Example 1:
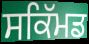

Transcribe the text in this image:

ਸਕਿੱਮਡ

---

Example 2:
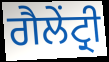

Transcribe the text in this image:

ਗੈਲੇਂਟ੍ਰੀ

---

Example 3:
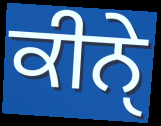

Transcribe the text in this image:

ਕੀਨੇੑ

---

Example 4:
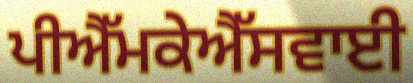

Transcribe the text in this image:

ਪੀਐੱਮਕੇਐੱਸਵਾਈ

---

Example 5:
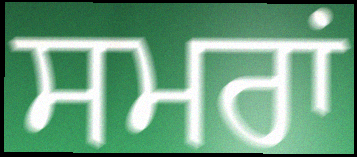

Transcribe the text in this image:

ਸਮਰਾਂ